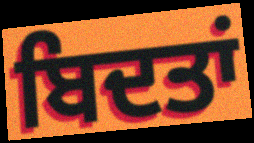
ਬਿਦਤਾਂ